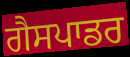
ਗੈਸਪਾਡਰ